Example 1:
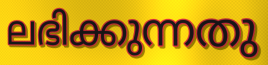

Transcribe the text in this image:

ലഭിക്കുന്നതു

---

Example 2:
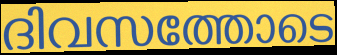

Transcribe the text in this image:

ദിവസത്തോടെ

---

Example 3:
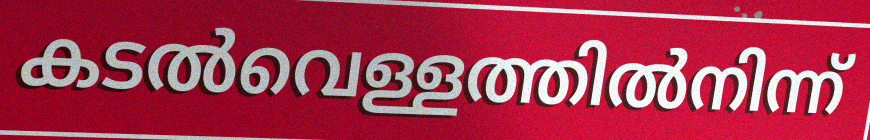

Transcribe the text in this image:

കടൽവെള്ളത്തിൽനിന്ന്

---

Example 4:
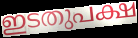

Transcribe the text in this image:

ഇടതുപക്ഷ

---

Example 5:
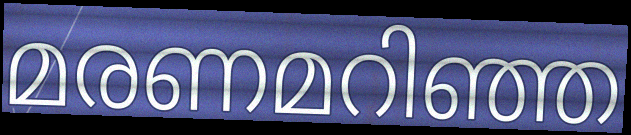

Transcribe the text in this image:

മരണമറിഞ്ഞ